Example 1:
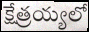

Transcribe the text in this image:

క్షేత్రయ్యలో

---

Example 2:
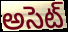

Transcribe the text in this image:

అసెట్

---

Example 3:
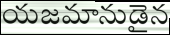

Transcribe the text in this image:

యజమానుడైన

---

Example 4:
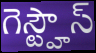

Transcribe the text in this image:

గెస్ట్హౌస్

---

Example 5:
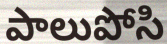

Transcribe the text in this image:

పాలుపోసి